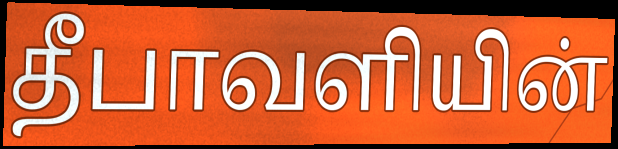
தீபாவளியின்